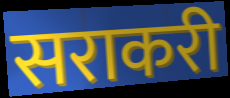
सराकरी